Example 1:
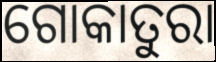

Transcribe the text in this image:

ଗୋକାତୁରା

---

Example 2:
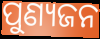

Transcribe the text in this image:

ପୁଣ୍ୟଜନ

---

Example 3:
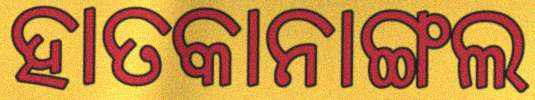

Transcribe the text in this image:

ହାତକାନାଙ୍ଗଲ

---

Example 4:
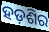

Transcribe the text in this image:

ହଡ଼ଶିର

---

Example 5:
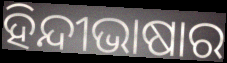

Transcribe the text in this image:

ହିନ୍ଦୀଭାଷାର